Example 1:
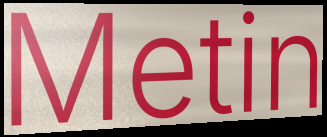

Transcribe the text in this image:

Metin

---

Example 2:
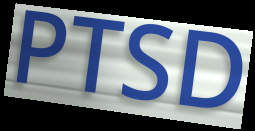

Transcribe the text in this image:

PTSD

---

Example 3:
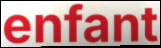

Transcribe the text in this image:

enfant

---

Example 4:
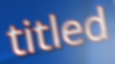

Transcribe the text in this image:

titled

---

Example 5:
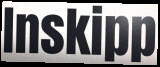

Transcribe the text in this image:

Inskipp